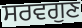
ਸਰਵਗੁਣ